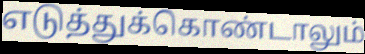
எடுத்துக்கொண்டாலும்